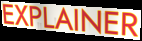
EXPLAINER